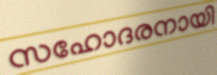
സഹോദരനായി